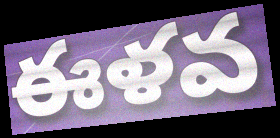
ఈళవ